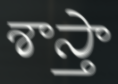
శాస్తా